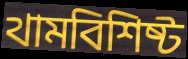
থামবিশিষ্ট